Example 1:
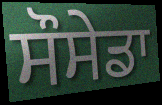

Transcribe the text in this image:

ਸੌਸੇਡਾ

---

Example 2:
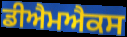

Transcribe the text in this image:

ਡੀਐਮਐਕਸ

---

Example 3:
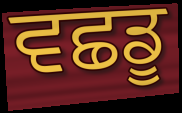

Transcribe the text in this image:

ਵਛਡੂ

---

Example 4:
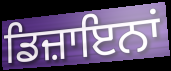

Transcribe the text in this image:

ਡਿਜ਼ਾਇਨਾਂ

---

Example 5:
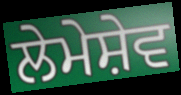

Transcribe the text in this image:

ਲੇਮੇਸ਼ੇਵ